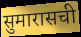
सुमारासची